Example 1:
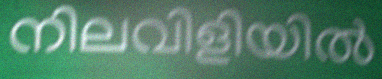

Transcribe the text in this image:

നിലവിളിയിൽ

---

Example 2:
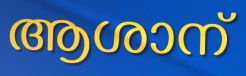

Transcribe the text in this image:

ആശാന്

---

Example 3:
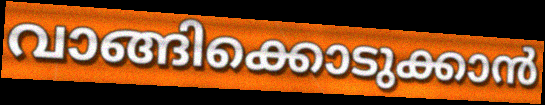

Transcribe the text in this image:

വാങ്ങിക്കൊടുക്കാൻ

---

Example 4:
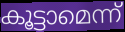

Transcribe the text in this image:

കൂട്ടാമെന്ന്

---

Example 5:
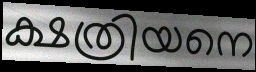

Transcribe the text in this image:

ക്ഷത്രിയനെ